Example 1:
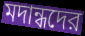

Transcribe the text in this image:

মদান্ধদের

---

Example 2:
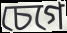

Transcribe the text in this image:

চেগে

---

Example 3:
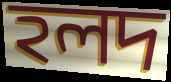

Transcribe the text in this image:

হলদ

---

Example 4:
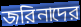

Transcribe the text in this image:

জরিনাদের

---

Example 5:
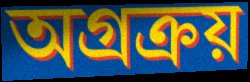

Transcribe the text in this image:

অগ্রক্রয়